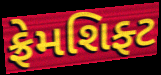
ફ્રેમશિફ્ટ